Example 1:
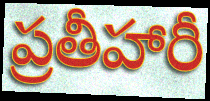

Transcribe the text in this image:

ప్రతీహారీ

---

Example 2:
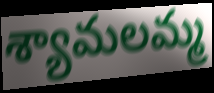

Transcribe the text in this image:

శ్యామలమ్మ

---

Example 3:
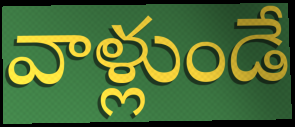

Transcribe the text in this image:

వాళ్లుండే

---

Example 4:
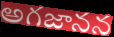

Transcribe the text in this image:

అగజానన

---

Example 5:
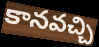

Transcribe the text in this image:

కానవచ్చి